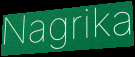
Nagrika